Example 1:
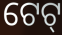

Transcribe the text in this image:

ଟେଟ୍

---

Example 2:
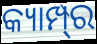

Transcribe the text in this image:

କ୍ୟାମ୍ପ୍‍ର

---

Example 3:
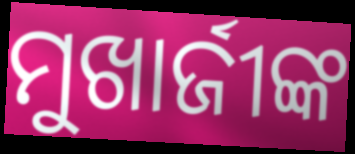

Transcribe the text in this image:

ମୁଖାର୍ଜୀଙ୍କ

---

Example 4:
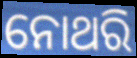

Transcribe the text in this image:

ନୋଥରି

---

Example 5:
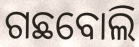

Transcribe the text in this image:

ଗଛବୋଲି